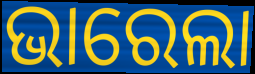
ଭାରେଲା